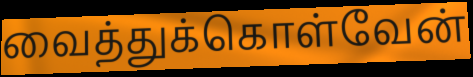
வைத்துக்கொள்வேன்